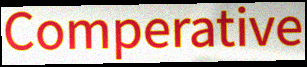
Comperative